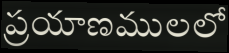
ప్రయాణములలో